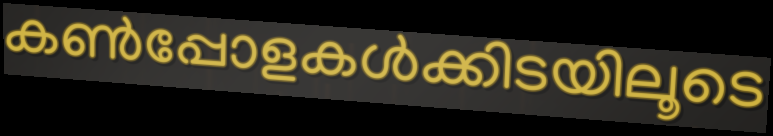
കൺപ്പോളകൾക്കിടയിലൂടെ